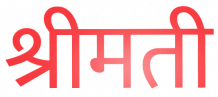
श्रीमती